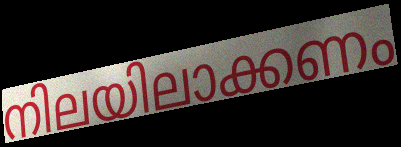
നിലയിലാക്കണം